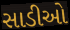
સાડીઓ